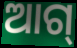
ଆଗ୍